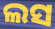
ଲସ